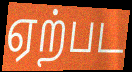
ஏற்பட